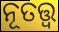
ନୂତତ୍ତ୍ବ